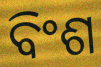
ବିଂଶ